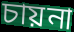
চায়না